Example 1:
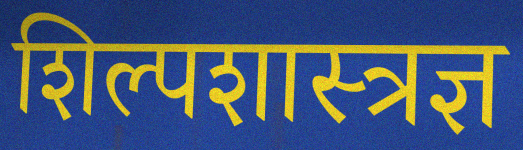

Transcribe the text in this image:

शिल्पशास्त्रज्ञ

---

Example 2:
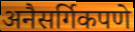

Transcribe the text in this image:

अनैसर्गिकपणे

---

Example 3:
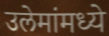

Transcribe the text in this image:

उलेमांमध्ये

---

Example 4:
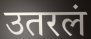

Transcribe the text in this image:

उतरलं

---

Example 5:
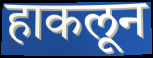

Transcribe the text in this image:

हाकलून